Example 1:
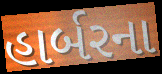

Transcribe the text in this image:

હાર્બરના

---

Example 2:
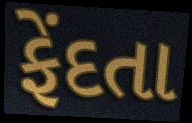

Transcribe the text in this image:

ફેંદતા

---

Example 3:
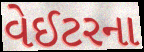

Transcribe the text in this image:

વેઈટરના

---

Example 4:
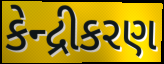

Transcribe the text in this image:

કેન્દ્રીકરણ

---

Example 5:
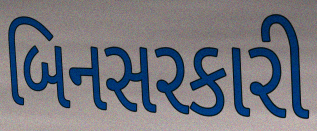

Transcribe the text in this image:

બિનસરકારી